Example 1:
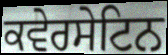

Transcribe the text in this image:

ਕਵੇਰਸੇਟਿਨ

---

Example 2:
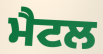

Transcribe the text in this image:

ਮੈਟਲ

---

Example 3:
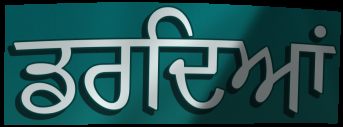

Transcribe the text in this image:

ਡਰਦਿਆਂ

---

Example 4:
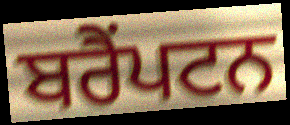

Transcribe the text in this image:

ਬਰੈੰਪਟਨ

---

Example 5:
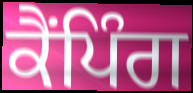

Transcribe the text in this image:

ਕੈਂਪਿੰਗ